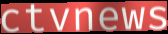
ctvnews